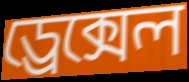
ড্রেক্সেল